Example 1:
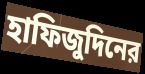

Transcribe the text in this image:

হাফিজুদিনের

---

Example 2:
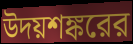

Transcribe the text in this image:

উদয়শঙ্করের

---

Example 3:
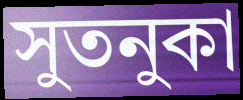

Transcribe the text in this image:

সুতনুকা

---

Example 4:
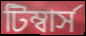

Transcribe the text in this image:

টিম্বার্স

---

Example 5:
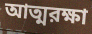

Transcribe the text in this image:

আত্মরক্ষা